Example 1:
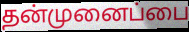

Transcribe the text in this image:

தன்முனைப்பை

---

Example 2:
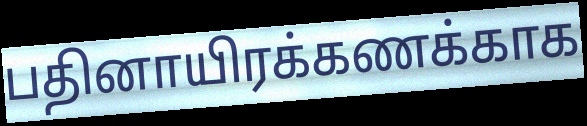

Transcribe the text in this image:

பதினாயிரக்கணக்காக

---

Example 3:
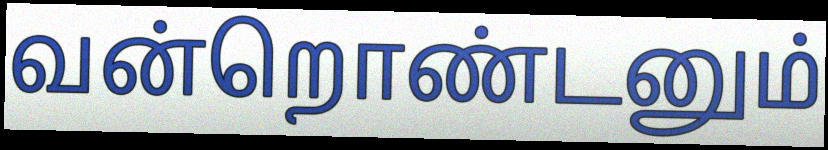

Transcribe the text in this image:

வன்றொண்டனும்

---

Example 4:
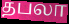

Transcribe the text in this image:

தபலா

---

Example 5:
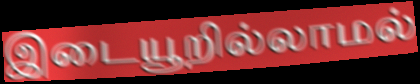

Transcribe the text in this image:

இடையூறில்லாமல்